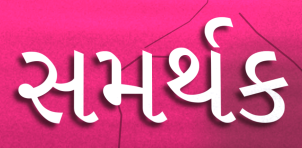
સમર્થક